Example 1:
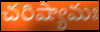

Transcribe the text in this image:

చరిష్యామః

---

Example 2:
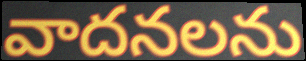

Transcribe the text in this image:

వాదనలను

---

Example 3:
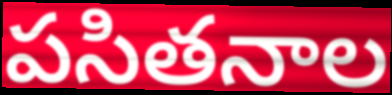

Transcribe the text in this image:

పసితనాల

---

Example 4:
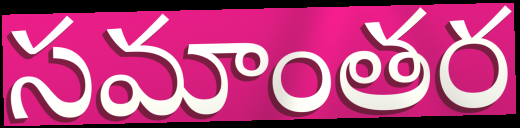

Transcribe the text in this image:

సమాంతర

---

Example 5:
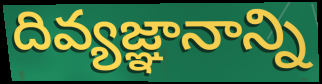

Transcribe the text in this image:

దివ్యజ్ఞానాన్ని